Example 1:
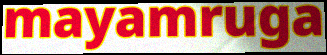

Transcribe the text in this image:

mayamruga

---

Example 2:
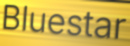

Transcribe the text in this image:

Bluestar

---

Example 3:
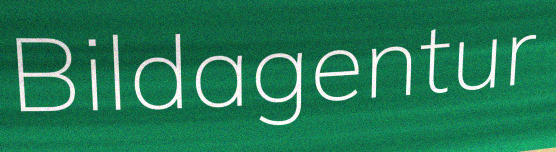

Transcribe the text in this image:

Bildagentur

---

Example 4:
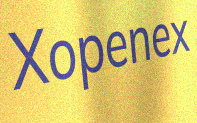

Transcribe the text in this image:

Xopenex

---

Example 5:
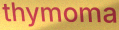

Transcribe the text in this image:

thymoma